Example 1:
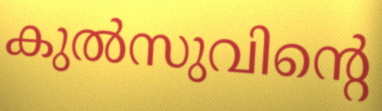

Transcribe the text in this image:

കുൽസുവിന്റെ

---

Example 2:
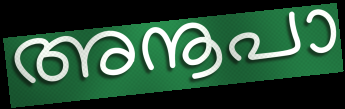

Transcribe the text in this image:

അനൂപാ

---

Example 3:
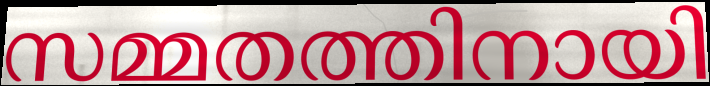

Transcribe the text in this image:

സമ്മതത്തിനായി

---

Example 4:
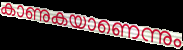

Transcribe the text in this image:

കാണുകയാണെന്നും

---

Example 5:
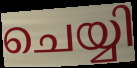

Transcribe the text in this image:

ചെയ്യി